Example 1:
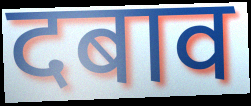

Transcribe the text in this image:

दबाव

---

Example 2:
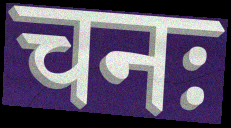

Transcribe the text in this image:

चनः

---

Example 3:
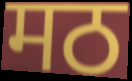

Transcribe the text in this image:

मठ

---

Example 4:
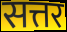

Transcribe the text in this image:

सत्तर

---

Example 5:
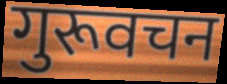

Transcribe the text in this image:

गुरूवचन